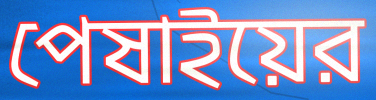
পেষাইয়ের